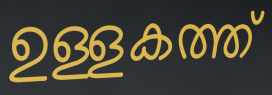
ഉള്ളകത്ത്